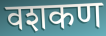
वशकण